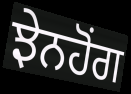
ਝੇਨਹੋਂਗ